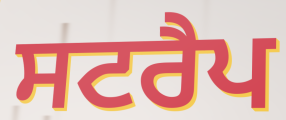
ਸਟਰੈਪ